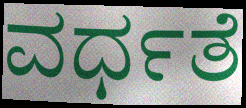
ವರ್ಧತೆ